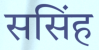
ससिंह